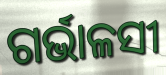
ଗର୍ଭାଳସୀ